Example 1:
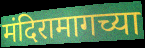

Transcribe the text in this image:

मंदिरामागच्या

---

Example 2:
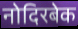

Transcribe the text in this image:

नोदिरबेक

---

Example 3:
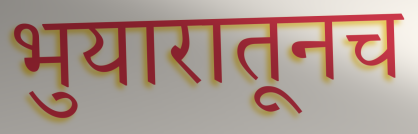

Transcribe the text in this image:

भुयारातूनच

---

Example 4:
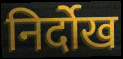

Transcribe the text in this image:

निर्दोख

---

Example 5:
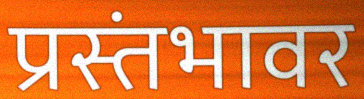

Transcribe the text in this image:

प्रस्तंभावर